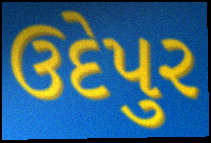
ઉદેપુર